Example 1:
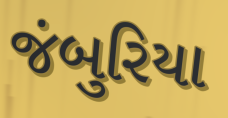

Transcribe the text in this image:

જંબુરિયા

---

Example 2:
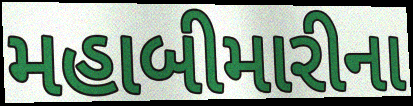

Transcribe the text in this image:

મહાબીમારીના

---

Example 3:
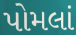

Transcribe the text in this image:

પોમલાં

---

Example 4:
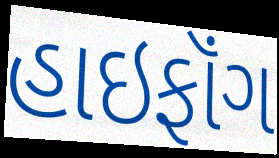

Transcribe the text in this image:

હાઇફૉંગ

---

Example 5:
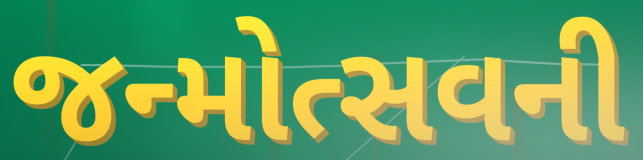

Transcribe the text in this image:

જન્મોત્સવની